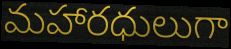
మహారధులుగా